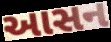
આસન